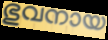
ഭുവനായ